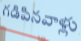
గడిపినవాళ్లు